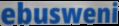
ebusweni